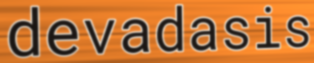
devadasis